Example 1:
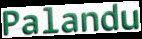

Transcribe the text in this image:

Palandu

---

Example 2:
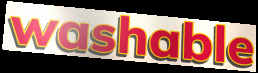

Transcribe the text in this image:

washable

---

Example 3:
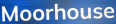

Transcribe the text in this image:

Moorhouse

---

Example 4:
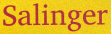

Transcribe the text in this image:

Salinger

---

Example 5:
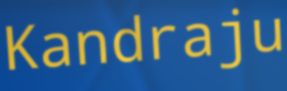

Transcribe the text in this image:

Kandraju